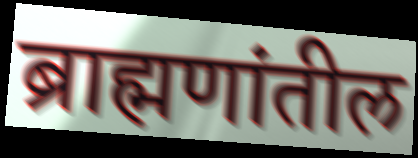
ब्राह्मणांतील